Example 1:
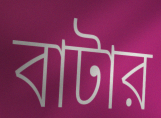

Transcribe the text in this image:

বাটার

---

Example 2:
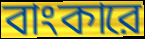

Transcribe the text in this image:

বাংকারে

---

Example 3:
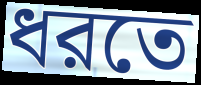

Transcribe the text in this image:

ধরতে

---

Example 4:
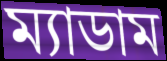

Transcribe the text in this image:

ম্যাডাম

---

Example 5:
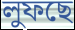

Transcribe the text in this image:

লুফছে